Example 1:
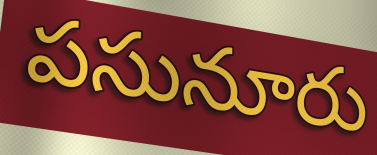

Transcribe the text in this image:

పసునూరు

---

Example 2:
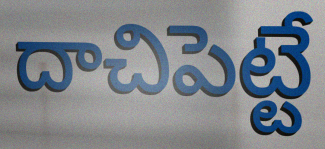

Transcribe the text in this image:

దాచిపెట్టే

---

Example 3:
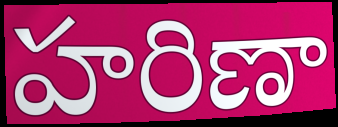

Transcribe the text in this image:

హరిణా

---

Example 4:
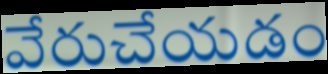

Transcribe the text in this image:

వేరుచేయడం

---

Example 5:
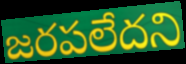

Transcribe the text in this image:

జరపలేదని